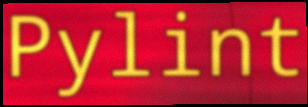
Pylint